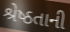
શ્રેષ્ઠતાની